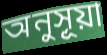
অনুসূয়া